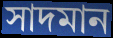
সাদমান